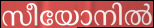
സീയോനിൽ